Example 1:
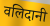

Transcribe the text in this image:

वलिदानी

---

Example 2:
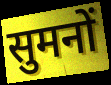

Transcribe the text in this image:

सुमनों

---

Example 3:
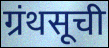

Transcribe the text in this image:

ग्रंथसूची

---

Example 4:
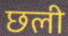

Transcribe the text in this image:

छली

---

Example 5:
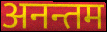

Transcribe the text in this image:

अनन्तम